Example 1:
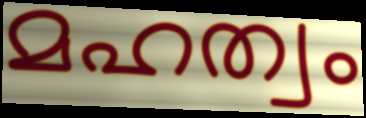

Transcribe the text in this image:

മഹത്വം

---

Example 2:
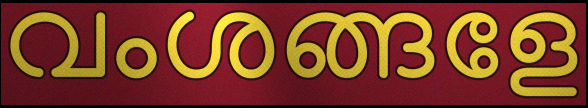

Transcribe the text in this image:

വംശങ്ങളേ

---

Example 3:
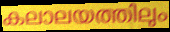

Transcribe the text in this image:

കലാലയത്തിലും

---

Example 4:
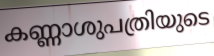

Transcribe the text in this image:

കണ്ണാശുപത്രിയുടെ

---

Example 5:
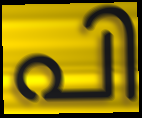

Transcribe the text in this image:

പി